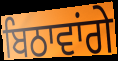
ਬਿਠਾਵਾਂਗੇ